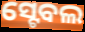
ସ୍ଟେବଲ